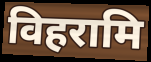
विहरामि